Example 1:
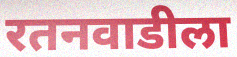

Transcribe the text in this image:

रतनवाडीला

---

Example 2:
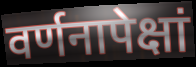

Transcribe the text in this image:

वर्णनापेक्षां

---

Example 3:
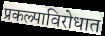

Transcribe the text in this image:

प्रकल्पाविरोधात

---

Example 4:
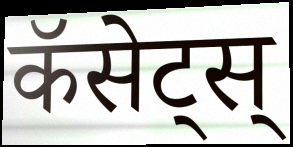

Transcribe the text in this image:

कॅसेट्स्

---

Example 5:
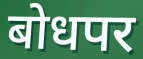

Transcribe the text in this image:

बोधपर